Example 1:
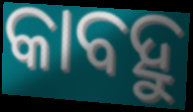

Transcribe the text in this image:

କାବହୁ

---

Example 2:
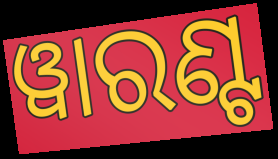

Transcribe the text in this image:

ୱାରଣ୍ଟ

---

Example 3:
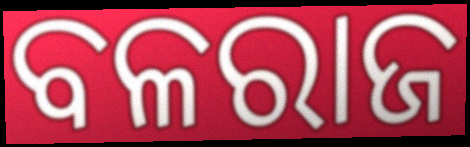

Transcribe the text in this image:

ବଳରାଜ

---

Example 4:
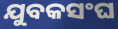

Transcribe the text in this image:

ଯୁବକସଂଘ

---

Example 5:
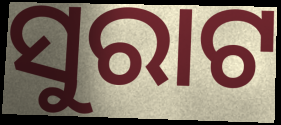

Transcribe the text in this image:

ସୁରାଟ